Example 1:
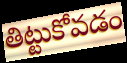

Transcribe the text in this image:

తిట్టుకోవడం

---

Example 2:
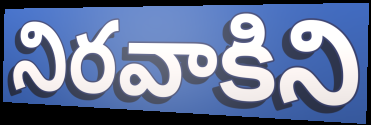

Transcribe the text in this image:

నిరవాకిని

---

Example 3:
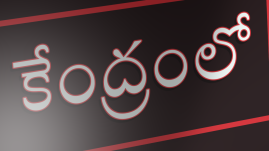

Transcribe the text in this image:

కేంద్రంలో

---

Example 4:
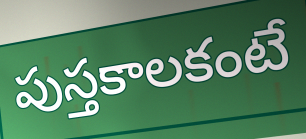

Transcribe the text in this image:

పుస్తకాలకంటే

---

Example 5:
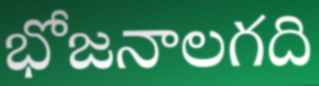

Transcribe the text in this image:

భోజనాలగది